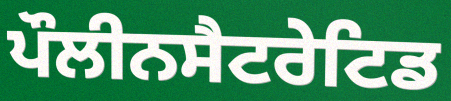
ਪੌਲੀਨਸੈਟਰੇਟਿਡ